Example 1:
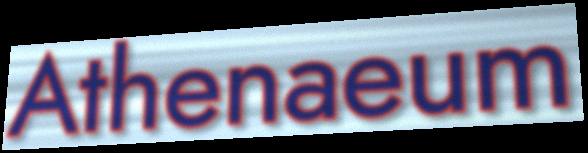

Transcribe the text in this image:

Athenaeum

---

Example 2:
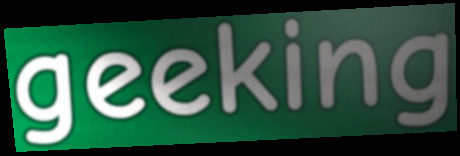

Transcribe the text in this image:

geeking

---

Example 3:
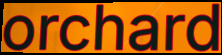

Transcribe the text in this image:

orchard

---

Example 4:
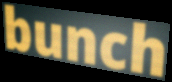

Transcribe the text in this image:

bunch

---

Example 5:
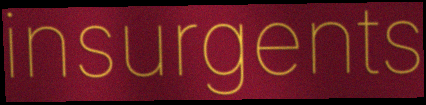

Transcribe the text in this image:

insurgents